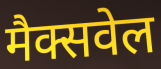
मैक्सवेल